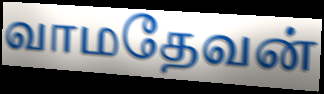
வாமதேவன்